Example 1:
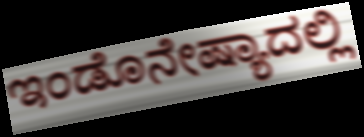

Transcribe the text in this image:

ಇಂಡೊನೇಷ್ಯಾದಲ್ಲಿ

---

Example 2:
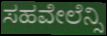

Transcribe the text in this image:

ಸಹವೇಲೆನ್ಸಿ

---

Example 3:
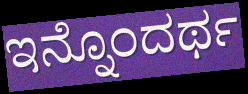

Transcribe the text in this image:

ಇನ್ನೊಂದರ್ಥ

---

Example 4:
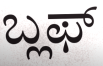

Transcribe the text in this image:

ಬ್ಲಫ್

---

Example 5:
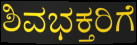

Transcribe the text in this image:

ಶಿವಭಕ್ತರಿಗೆ